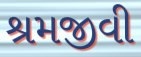
શ્રમજીવી